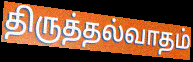
திருத்தல்வாதம்